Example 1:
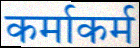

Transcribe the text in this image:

कर्माकर्म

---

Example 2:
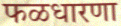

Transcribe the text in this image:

फळधारणा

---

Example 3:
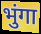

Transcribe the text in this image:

भुंगा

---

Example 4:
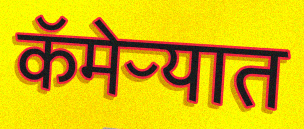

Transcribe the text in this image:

कॅमेऱ्यात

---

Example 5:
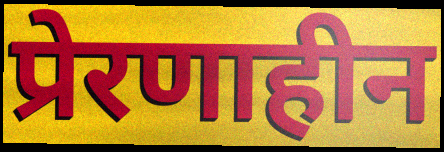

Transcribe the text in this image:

प्रेरणाहीन